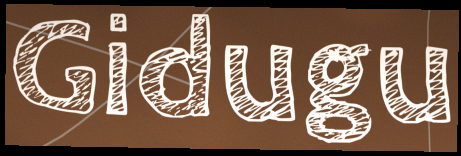
Gidugu